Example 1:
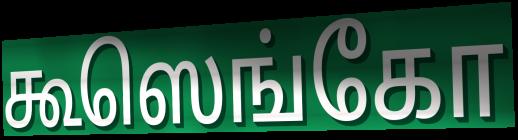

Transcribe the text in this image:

கூஸெங்கோ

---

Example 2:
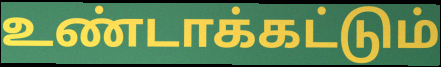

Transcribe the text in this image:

உண்டாக்கட்டும்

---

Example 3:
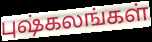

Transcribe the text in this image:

புஷ்கலங்கள்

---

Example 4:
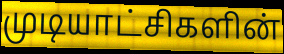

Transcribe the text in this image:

முடியாட்சிகளின்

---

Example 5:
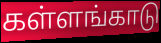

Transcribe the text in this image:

கள்ளங்காடு